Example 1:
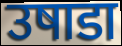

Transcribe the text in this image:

उषाडा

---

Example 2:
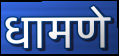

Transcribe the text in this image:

धामणे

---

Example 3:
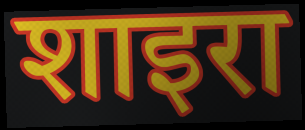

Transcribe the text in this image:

शाइरा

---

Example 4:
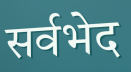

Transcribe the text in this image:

सर्वभेद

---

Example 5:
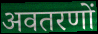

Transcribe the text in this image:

अवतरणों